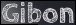
Gibon